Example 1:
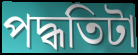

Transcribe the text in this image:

পদ্ধতিটা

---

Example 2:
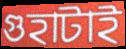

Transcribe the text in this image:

গুহাটাই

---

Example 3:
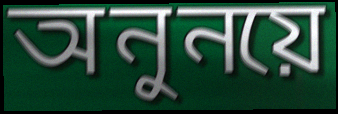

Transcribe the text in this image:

অনুনয়ে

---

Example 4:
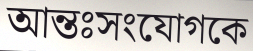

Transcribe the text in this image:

আন্তঃসংযোগকে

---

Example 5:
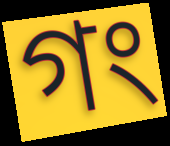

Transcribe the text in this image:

গং